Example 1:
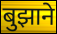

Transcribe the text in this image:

बुझाने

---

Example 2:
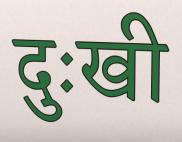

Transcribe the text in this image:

दुःखी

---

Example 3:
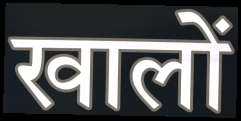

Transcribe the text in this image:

खालों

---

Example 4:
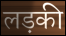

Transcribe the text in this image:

लड़की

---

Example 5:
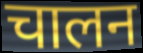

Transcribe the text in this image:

चालन